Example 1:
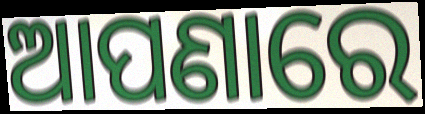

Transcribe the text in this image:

ଆପଣାରେ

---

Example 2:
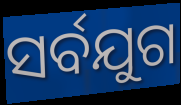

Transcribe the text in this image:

ସର୍ବଯୁଗ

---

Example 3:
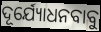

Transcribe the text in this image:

ଦୂର୍ଯ୍ୟୋଧନବାବୁ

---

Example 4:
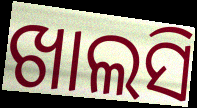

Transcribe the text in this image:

ଖାଲସି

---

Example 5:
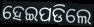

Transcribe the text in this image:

ହେଇପଡିଲେ